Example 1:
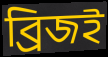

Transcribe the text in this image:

ব্রিজই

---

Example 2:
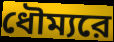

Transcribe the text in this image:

ধৌম্যরে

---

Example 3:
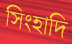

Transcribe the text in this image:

সিংহাদি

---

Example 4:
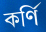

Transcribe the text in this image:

কর্ণি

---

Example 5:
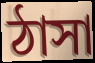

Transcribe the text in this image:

ঠাসা